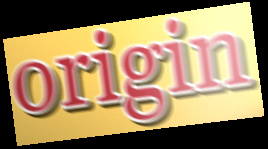
origin